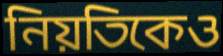
নিয়তিকেও